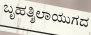
ಬೃಹತ್ಶಿಲಾಯುಗದ